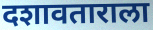
दशावताराला